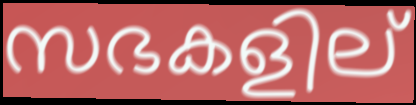
സഭകളില്